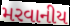
મરવાનીય